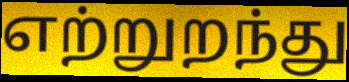
எற்றுறந்து